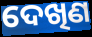
ଦେଖିଣ